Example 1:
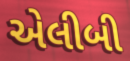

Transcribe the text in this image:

એલીબી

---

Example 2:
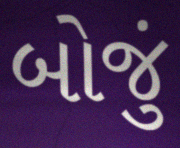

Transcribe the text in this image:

બોજું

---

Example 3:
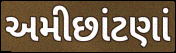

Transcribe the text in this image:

અમીછાંટણાં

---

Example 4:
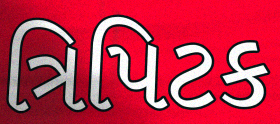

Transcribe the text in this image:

ત્રિપિટક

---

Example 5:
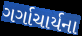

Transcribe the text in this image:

ગર્ગાચાર્યના